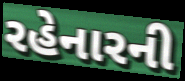
રહેનારની